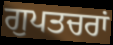
ਗੁਪਤਚਰਾਂ